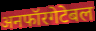
अनफॉरगेटेबल